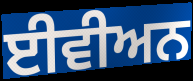
ਈਵੀਅਨ